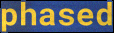
phased